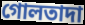
গোলতাদা